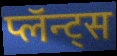
प्लॅन्ट्स